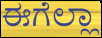
ಈಗೆಲ್ಲಾ